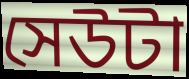
সেউটা